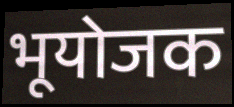
भूयोजक